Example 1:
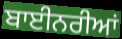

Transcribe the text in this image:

ਬਾਈਨਰੀਆਂ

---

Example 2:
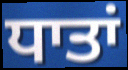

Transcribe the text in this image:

ਧਾਤਾਂ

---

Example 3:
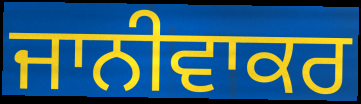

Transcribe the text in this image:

ਜਾਨੀਵਾਕਰ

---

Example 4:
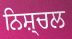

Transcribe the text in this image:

ਨਿਸ਼੍ਚਲ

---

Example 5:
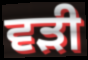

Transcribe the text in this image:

ਵੜੀ